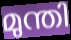
മുന്തി